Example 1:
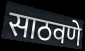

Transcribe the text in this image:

साठवणे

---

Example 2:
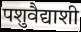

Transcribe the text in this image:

पशुवैद्याशी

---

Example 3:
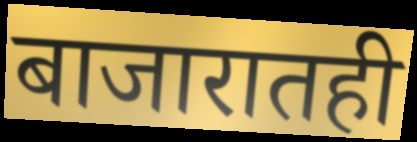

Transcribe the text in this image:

बाजारातही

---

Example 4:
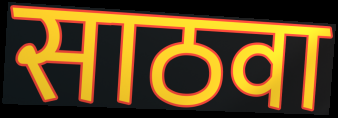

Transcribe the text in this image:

साठवा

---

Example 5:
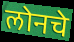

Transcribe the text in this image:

लोनचे